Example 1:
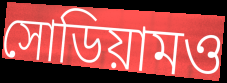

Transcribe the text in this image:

সোডিয়ামও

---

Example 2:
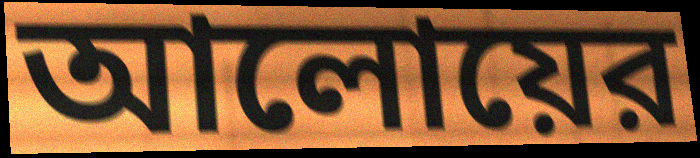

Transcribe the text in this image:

আলোয়ের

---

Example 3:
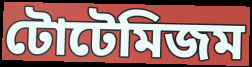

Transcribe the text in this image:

টোটেমিজম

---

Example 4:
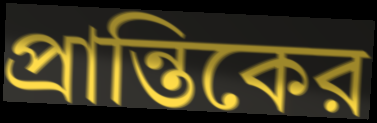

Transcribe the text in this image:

প্রান্তিকের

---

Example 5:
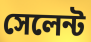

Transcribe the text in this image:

সেলেন্ট